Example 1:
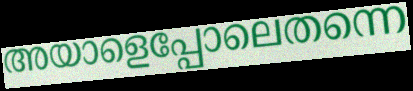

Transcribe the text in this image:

അയാളെപ്പോലെതന്നെ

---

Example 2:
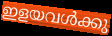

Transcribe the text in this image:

ഇളയവൾക്കു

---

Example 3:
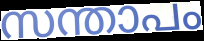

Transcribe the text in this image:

സന്താപം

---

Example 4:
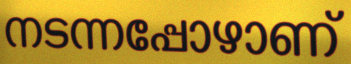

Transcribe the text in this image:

നടന്നപ്പോഴാണ്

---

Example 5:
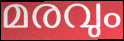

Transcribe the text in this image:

മരവും